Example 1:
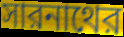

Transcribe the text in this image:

সারনাথের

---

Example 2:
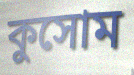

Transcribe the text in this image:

কুসোম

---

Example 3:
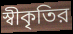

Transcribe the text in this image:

স্বীকৃতির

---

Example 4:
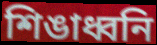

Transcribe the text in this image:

শিঙাধ্বনি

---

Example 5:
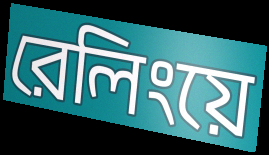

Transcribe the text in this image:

রেলিংয়ে